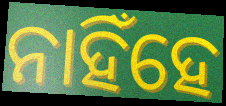
ନାହିଁହେ